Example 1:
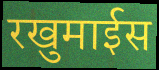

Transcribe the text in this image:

रखुमाईस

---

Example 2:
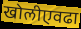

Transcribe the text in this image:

खोलीएवढा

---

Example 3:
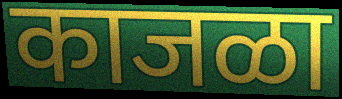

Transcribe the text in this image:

काजळा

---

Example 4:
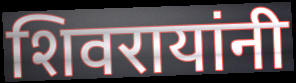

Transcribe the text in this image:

शिवरायांनी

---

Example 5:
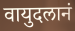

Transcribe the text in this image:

वायुदलानं